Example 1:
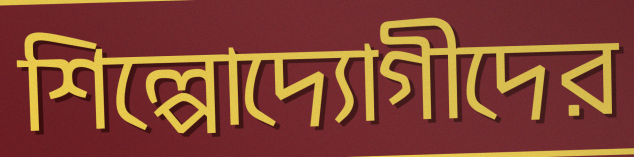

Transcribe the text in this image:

শিল্পোদ্যোগীদের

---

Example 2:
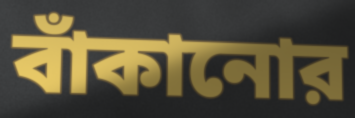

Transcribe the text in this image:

বাঁকানোর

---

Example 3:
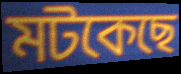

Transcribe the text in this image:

মটকেছে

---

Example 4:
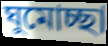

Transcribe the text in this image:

ঘুমোচ্ছা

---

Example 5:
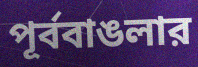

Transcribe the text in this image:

পূর্ববাঙলার